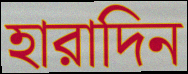
হারাদিন